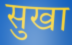
सुखा